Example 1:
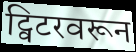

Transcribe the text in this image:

ट्विटरवरून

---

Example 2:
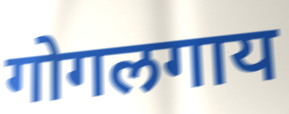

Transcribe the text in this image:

गोगलगाय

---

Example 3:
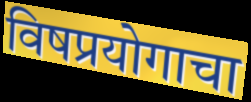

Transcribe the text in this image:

विषप्रयोगाचा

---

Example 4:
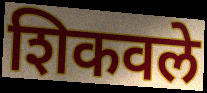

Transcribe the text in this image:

शिकवले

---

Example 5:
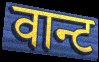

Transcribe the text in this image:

वान्ट